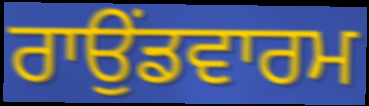
ਰਾਉਂਡਵਾਰਮ